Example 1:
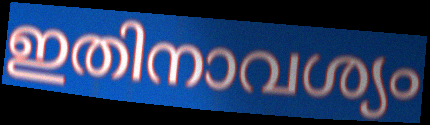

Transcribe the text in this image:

ഇതിനാവശ്യം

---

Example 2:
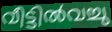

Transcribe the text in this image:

വീട്ടിൽവച്ചു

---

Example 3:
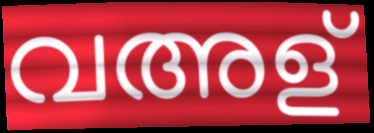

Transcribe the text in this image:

വഅള്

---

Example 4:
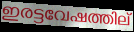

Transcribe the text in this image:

ഇരട്ടവേഷത്തില്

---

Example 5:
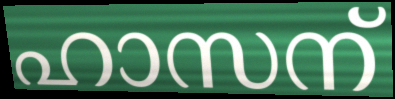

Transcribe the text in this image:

ഹാസന്